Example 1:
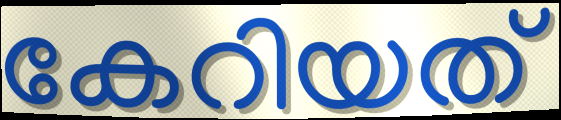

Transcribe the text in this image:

കേറിയത്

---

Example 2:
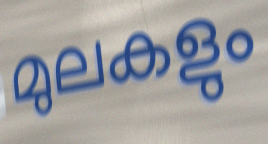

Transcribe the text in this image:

മുലകളും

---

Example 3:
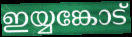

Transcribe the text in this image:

ഇയ്യങ്കോട്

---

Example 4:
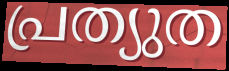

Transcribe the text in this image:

പ്രത്യുത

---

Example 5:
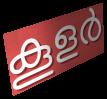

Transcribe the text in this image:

കൂളർ